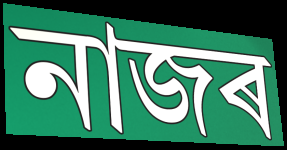
নাজৰ